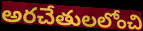
అరచేతులలోంచి